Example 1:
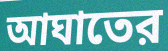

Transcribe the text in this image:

আঘাতের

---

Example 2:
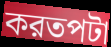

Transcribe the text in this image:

করতপটা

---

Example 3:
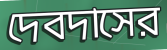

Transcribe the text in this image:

দেবদাসের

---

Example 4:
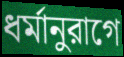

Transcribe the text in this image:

ধর্মানুরাগে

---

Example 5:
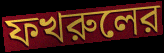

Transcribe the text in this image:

ফখরুলের